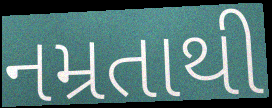
નમ્રતાથી